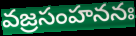
వజ్రసంహననః